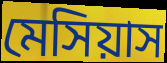
মেসিয়াস